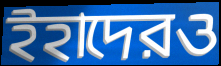
ইহাদেরও